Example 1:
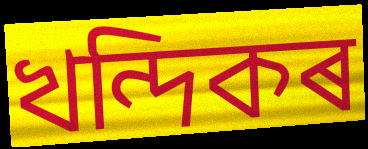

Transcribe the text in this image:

খন্দিকৰ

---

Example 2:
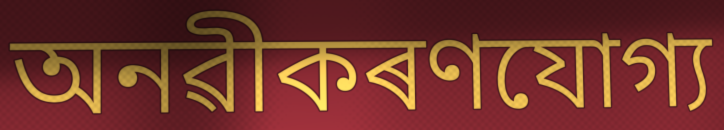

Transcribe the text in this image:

অনৱীকৰণযোগ্য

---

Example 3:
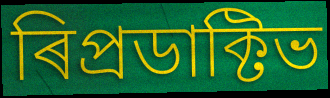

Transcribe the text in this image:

ৰিপ্ৰডাক্টিভ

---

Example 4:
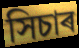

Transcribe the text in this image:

সিচাৰ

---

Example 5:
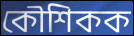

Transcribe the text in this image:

কৌশিকক